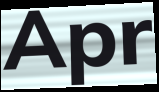
Apr